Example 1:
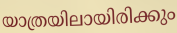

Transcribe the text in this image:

യാത്രയിലായിരിക്കും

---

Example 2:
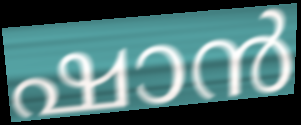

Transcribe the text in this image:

ഷാൻ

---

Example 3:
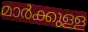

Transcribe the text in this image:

മാർക്കുള്ള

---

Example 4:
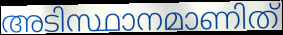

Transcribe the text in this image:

അടിസ്ഥാനമാണിത്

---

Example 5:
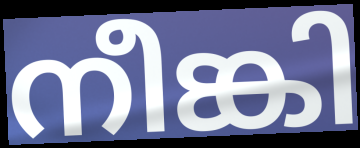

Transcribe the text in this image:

നീങ്കി